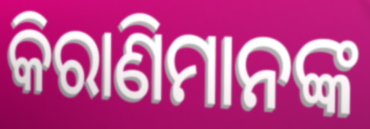
କିରାଣିମାନଙ୍କ